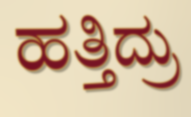
ಹತ್ತಿದ್ರು